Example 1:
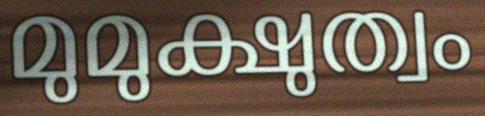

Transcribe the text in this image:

മുമുക്ഷുത്വം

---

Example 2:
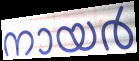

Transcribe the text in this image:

നായർ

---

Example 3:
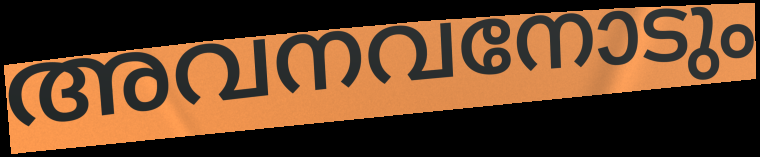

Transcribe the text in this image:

അവനവനോടും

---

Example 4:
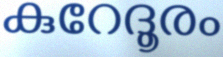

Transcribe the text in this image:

കുറേദൂരം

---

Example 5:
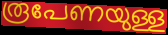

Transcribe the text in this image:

രൂപേണയുള്ള